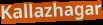
Kallazhagar